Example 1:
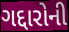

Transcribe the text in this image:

ગદ્દારોની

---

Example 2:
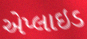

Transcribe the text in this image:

એપ્લાઇડ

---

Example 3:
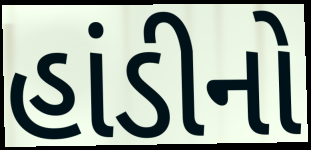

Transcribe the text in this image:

હાંડીનો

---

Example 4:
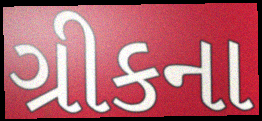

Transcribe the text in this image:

ગ્રીકના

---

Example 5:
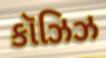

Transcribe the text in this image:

કૉઝિઝ